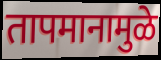
तापमानामुळे